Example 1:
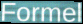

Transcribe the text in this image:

Formel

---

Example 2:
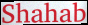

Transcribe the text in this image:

Shahab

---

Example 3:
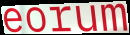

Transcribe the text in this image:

eorum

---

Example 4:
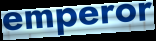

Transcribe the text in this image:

emperor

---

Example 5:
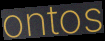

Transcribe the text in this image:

ontos